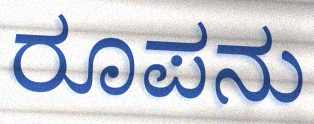
ರೂಪನು